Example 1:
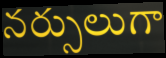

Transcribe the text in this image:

నర్సులుగా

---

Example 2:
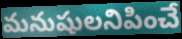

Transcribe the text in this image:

మనుషులనిపించే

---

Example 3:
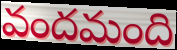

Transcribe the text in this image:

వందమంది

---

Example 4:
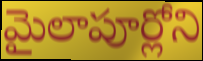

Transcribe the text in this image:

మైలాపూర్లోని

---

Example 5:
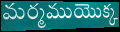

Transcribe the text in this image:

మర్మముయొక్క